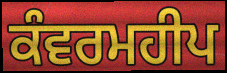
ਕੰਵਰਮਹੀਪ